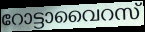
റോട്ടാവൈറസ്